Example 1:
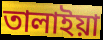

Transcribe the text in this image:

তালাইয়া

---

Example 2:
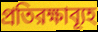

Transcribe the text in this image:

প্রতিরক্ষাব্যূহ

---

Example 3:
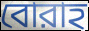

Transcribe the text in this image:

বোরাহ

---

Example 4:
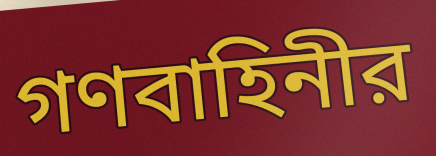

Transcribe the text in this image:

গণবাহিনীর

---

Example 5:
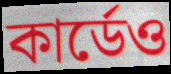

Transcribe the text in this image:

কার্ডেও